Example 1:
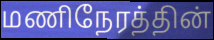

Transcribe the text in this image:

மணிநேரத்தின்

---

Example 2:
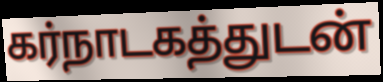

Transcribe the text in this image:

கர்நாடகத்துடன்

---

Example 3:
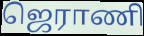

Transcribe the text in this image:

ஜெராணி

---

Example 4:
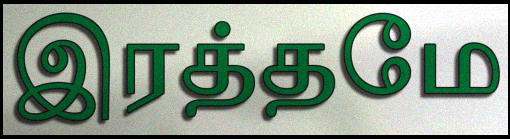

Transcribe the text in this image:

இரத்தமே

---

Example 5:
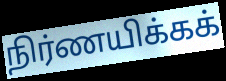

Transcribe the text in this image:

நிர்ணயிக்கக்